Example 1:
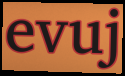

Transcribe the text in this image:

evuj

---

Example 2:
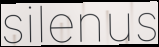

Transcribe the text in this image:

silenus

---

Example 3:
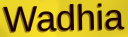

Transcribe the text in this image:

Wadhia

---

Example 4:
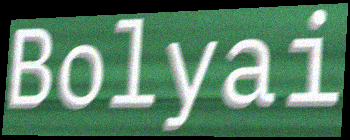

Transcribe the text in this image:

Bolyai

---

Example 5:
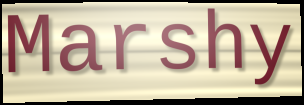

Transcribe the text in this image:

Marshy